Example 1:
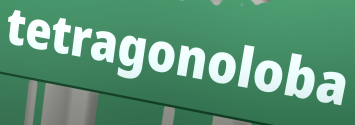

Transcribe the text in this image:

tetragonoloba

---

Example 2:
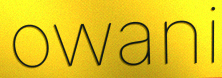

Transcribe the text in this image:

owani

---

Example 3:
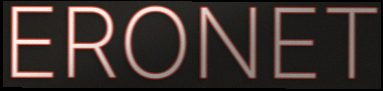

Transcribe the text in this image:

ERONET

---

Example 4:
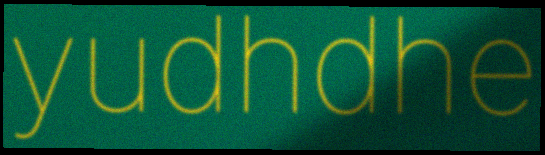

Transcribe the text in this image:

yudhdhe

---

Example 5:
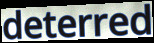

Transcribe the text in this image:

deterred